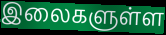
இலைகளுள்ள